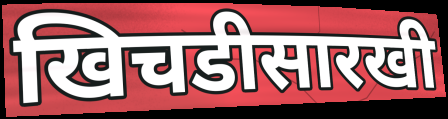
खिचडीसारखी